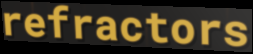
refractors